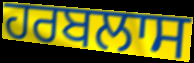
ਹਰਬਲਾਸ